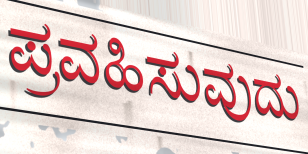
ಪ್ರವಹಿಸುವುದು